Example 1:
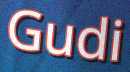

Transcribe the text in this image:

Gudi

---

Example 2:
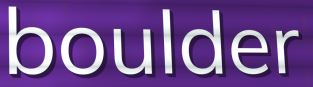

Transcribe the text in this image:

boulder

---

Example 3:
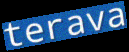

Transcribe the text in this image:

terava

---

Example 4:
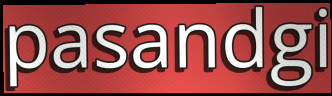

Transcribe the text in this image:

pasandgi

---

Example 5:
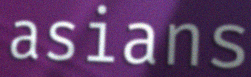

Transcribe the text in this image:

asians